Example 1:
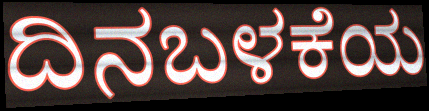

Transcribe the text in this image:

ದಿನಬಳಕೆಯ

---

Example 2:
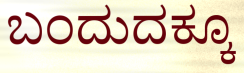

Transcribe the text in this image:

ಬಂದುದಕ್ಕೂ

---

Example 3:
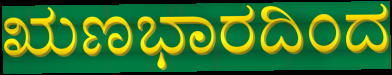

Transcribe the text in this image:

ಋಣಭಾರದಿಂದ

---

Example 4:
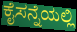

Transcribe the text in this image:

ಕೈಸನ್ನೆಯಲ್ಲಿ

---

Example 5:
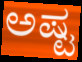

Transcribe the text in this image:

ಅಷ್ಟ